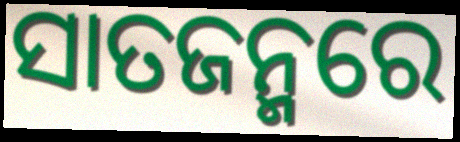
ସାତଜନ୍ମରେ